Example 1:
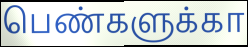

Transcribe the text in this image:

பெண்களுக்கா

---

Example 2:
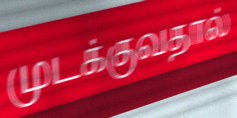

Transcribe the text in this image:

முடக்குவதால்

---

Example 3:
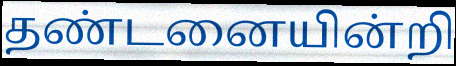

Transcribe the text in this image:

தண்டனையின்றி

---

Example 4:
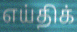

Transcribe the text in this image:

எய்திக்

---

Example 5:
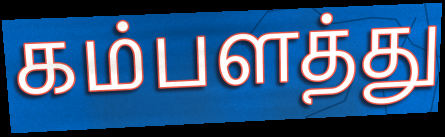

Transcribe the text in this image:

கம்பளத்து